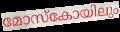
മോസ്കോയിലും